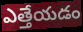
ఎత్తేయడం